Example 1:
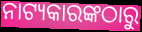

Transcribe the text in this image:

ନାଟ୍ୟକାରଙ୍କଠାରୁ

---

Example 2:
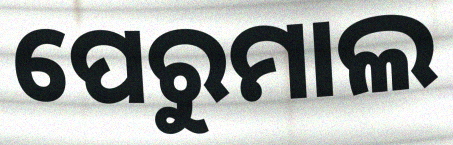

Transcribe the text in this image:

ପେରୁମାଲ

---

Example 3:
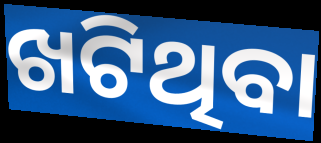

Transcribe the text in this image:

ଖଟିଥିବା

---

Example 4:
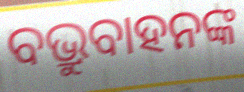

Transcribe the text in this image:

ବଭ୍ରୁବାହନଙ୍କ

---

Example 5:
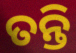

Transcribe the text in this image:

ତନ୍ତି